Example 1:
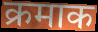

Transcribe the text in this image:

क्रमाक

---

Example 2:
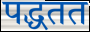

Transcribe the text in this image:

पद्धतत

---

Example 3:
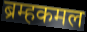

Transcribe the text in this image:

ब्रम्हकमल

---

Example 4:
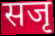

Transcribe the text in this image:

सजृ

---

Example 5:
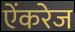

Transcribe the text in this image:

ऐंकरेज